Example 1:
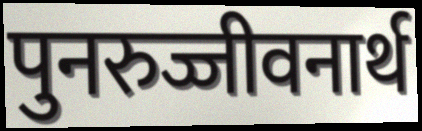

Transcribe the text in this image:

पुनरुज्जीवनार्थ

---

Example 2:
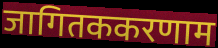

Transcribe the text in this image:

जागितककरणाम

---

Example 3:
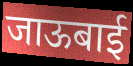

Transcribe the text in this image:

जाऊबाई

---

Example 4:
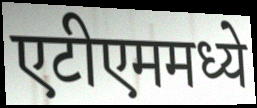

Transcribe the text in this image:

एटीएममध्ये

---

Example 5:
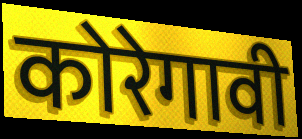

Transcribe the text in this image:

कोरेगावी